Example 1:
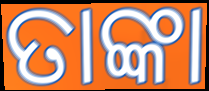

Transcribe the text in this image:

ତାଙ୍କା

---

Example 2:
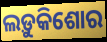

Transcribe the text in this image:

ଲଡ଼ୁକିଶୋର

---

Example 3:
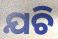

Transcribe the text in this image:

ଯଚି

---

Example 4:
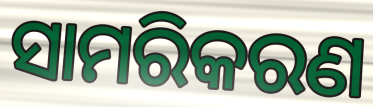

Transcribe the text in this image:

ସାମରିକରଣ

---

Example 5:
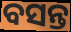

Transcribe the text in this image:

ବସନ୍ତ